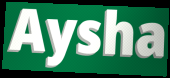
Aysha